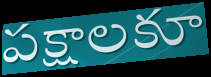
పక్షాలకూ